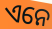
ଏନେ